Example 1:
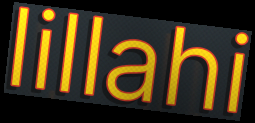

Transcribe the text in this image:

lillahi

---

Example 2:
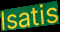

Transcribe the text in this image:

Isatis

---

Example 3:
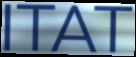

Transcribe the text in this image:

ITAT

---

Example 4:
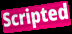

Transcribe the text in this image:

Scripted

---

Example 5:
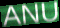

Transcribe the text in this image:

ANU